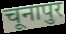
चूनापुर